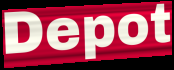
Depot